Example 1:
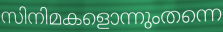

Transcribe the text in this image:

സിനിമകളൊന്നുംതന്നെ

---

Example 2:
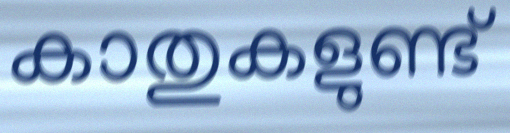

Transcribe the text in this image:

കാതുകളുണ്ട്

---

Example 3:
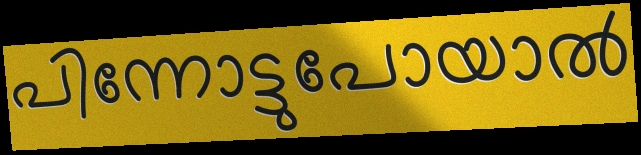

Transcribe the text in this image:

പിന്നോട്ടുപോയാൽ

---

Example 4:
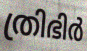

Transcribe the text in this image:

ത്രിഭിർ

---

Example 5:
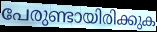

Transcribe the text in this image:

പേരുണ്ടായിരിക്കുക